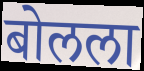
बोलला